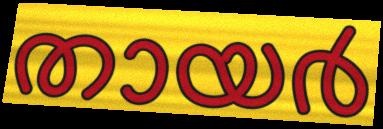
തായർ